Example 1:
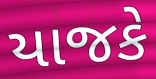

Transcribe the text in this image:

યાજકે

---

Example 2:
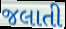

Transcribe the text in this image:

જલાતી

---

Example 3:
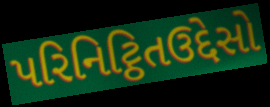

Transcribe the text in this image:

પરિનિટ્ઠિતઉદ્દેસો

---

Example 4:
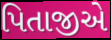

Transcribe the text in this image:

પિતાજીએ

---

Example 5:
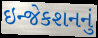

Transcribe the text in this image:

ઇન્જેકશનનું